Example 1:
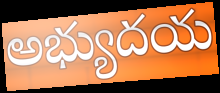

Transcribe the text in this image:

అభ్యుదయ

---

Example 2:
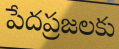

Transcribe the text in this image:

పేదప్రజలకు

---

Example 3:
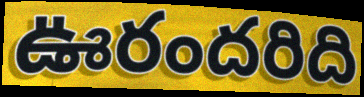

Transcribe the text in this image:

ఊరందరిది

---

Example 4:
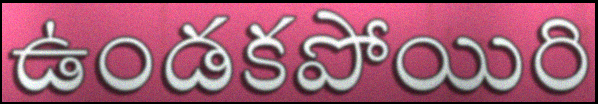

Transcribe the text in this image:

ఉండకపోయిరి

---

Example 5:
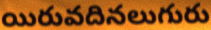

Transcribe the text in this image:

యిరువదినలుగురు